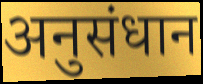
अनुसंधान